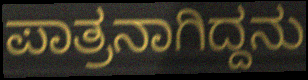
ಪಾತ್ರನಾಗಿದ್ದನು